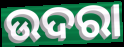
ଉଦରା